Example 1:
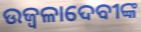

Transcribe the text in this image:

ଉଜ୍ୱଳାଦେବୀଙ୍କ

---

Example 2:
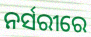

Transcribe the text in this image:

ନର୍ସରୀରେ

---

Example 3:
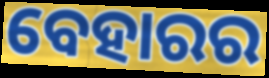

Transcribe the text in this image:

ବେହାରର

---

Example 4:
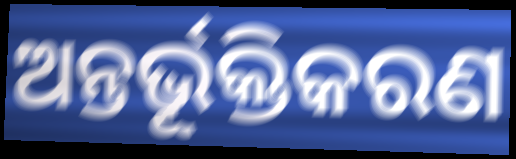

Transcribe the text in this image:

ଅନ୍ତର୍ଭୂକ୍ତିକରଣ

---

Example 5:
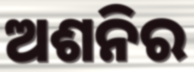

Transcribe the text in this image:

ଅଶନିର